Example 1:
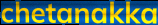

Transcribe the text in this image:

chetanakka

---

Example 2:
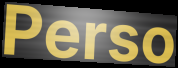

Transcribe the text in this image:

Perso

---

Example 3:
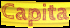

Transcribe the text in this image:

Capita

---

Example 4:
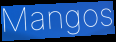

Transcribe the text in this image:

Mangos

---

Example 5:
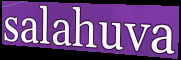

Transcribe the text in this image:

salahuva